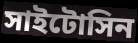
সাইটোসিন